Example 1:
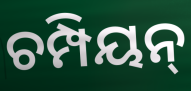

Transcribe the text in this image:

ଚମ୍ପିୟନ୍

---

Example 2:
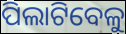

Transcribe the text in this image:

ପିଲାଟିବେଳୁ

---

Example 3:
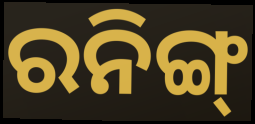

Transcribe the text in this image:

ରନିଙ୍ଗ୍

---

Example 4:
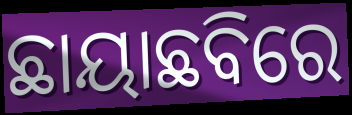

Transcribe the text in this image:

ଛାୟାଛବିରେ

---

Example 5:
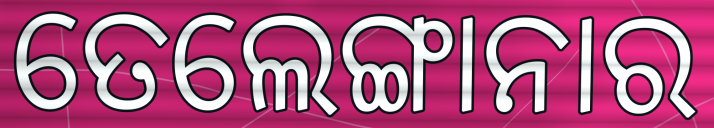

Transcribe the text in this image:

ତେଲେଙ୍ଗାନାର